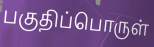
பகுதிப்பொருள்